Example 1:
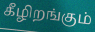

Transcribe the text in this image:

கீழிறங்கும்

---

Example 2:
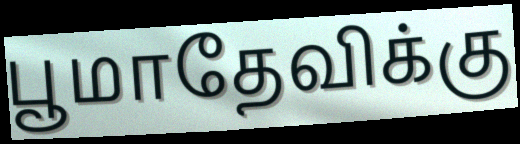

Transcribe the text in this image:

பூமாதேவிக்கு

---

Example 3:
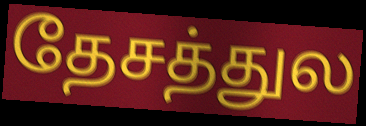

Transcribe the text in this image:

தேசத்துல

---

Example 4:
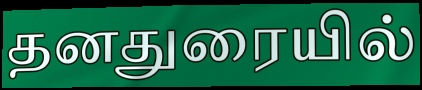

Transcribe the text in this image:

தனதுரையில்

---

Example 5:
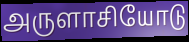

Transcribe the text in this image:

அருளாசியோடு